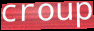
croup